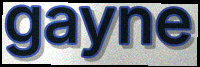
gayne